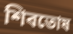
শিবতোষ